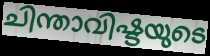
ചിന്താവിഷ്ടയുടെ